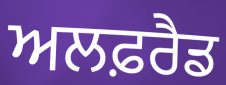
ਅਲਫ਼ਰੈਡ